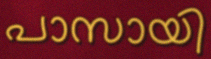
പാസായി